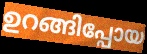
ഉറങ്ങിപ്പോയ